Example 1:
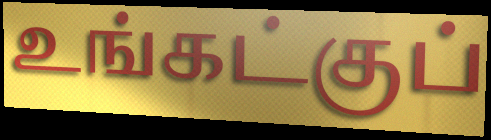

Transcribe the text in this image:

உங்கட்குப்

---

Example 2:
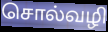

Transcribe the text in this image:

சொல்வழி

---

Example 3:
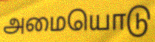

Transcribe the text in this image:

அமையொடு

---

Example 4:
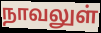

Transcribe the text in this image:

நாவலுள்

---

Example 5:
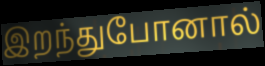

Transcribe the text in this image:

இறந்துபோனால்